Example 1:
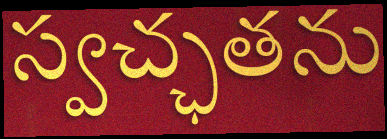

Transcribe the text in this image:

స్వచ్ఛతను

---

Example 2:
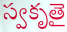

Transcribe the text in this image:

స్వకృతై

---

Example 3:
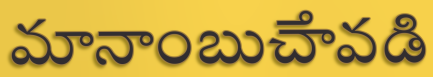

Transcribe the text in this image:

మానాంబుౘావడి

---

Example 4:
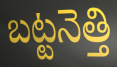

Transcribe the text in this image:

బట్టనెత్తి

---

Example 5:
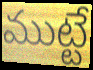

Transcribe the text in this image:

ముట్టే